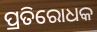
ପ୍ରତିରୋଧକ